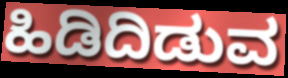
ಹಿಡಿದಿಡುವ